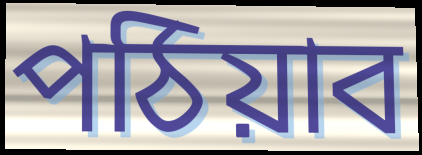
পঠিয়াব